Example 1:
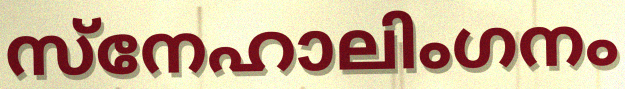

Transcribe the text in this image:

സ്നേഹാലിംഗനം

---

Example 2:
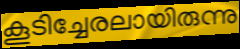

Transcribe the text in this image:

കൂടിച്ചേരലായിരുന്നു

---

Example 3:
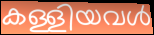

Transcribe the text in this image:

കള്ളിയവൾ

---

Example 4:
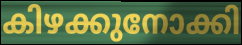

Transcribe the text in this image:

കിഴക്കുനോക്കി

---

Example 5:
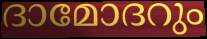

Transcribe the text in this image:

ദാമോദറും